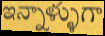
ఇన్నాళ్ళుగా